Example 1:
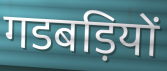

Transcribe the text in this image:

गडबड़ियों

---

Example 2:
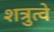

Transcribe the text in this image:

शत्रुत्वे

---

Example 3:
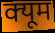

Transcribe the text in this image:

क्यूम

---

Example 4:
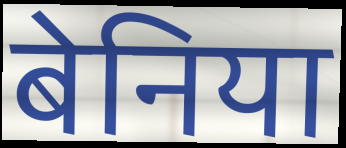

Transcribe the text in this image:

बेनिया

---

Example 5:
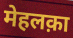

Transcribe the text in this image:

मेहलक़ा